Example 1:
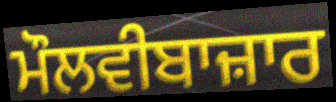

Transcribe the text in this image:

ਮੌਲਵੀਬਾਜ਼ਾਰ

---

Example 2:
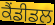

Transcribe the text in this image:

ਕੈਂਡੀਡਲ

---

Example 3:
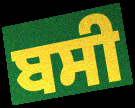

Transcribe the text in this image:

ਬਸੀ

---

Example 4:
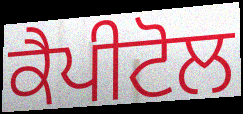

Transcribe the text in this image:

ਕੈਪੀਟੋਲ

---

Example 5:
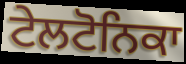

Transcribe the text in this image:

ਟੇਲਟੋਨਿਕਾ